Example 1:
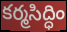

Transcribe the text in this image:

కర్మసిద్ధిం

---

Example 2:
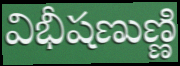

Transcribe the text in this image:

విభీషణుణ్ణి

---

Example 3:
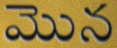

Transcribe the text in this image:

మొన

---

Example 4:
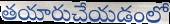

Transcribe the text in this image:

తయారుచేయడంలో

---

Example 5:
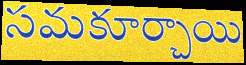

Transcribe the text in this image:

సమకూర్చాయి